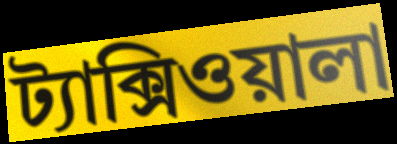
ট্যাক্সিওয়ালা